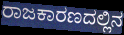
ರಾಜಕಾರಣದಲ್ಲಿನ